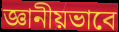
জ্ঞানীয়ভাবে